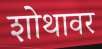
शोथावर